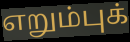
எறும்புக்